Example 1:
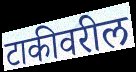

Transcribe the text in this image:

टाकीवरील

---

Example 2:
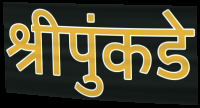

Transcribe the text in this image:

श्रीपुंकडे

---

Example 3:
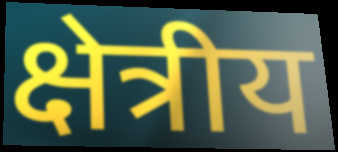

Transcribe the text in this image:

क्षेत्रीय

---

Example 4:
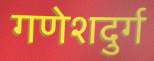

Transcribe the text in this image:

गणेशदुर्ग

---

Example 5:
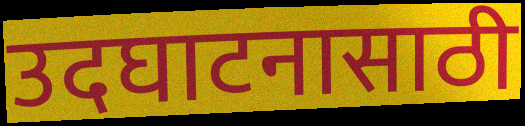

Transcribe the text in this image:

उदघाटनासाठी